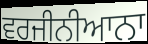
ਵਰਜੀਨੀਆਨਾ